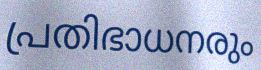
പ്രതിഭാധനരും